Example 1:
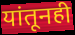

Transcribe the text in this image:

यांतूनही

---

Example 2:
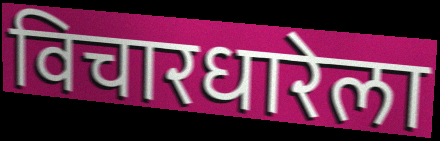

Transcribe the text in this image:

विचारधारेला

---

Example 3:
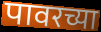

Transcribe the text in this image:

पावरच्या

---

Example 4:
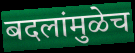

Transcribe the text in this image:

बदलांमुळेच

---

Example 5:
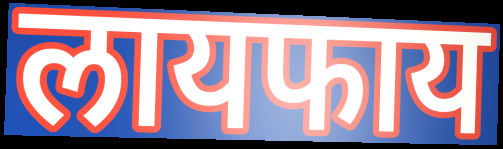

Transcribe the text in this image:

लायफाय